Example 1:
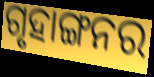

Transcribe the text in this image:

ଗୃହାଙ୍ଗନର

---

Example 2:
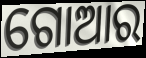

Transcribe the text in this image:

ଗୋଆର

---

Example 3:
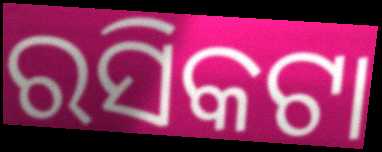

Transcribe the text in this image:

ରସିକଟା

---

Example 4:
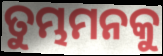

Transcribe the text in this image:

ତୁମ୍ଭମନକୁ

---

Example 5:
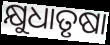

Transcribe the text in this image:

କ୍ଷୁଧାତୃଷା